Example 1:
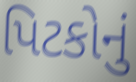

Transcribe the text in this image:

પિટકોનું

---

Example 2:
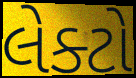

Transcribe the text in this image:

લેક્ટો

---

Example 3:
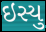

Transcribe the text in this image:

ઇસ્યુ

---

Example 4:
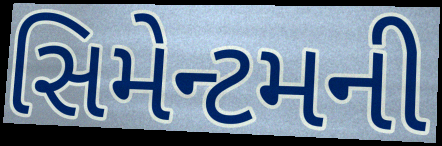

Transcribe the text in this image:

સિમેન્ટમની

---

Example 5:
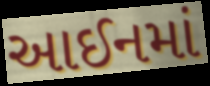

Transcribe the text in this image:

આઈનમાં